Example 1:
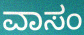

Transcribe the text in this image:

ವಾಸಂ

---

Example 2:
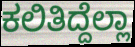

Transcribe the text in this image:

ಕಲಿತಿದ್ದೆಲ್ಲಾ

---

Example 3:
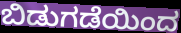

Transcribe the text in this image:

ಬಿಡುಗಡೆಯಿಂದ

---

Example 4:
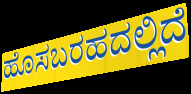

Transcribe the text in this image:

ಹೊಸಬರಹದಲ್ಲಿದೆ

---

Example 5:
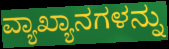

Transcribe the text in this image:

ವ್ಯಾಖ್ಯಾನಗಳನ್ನು